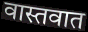
वास्तवात